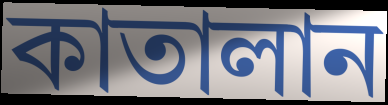
কাতালান